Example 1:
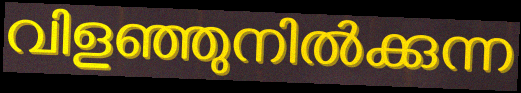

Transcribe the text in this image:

വിളഞ്ഞുനിൽക്കുന്ന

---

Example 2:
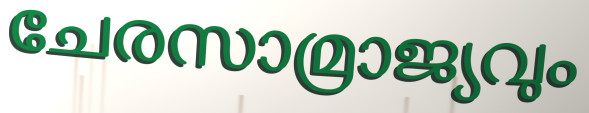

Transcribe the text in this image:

ചേരസാമ്രാജ്യവും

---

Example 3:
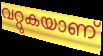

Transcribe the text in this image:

വറ്റുകയാണ്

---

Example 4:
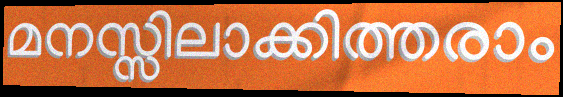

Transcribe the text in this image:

മനസ്സിലാക്കിത്തരാം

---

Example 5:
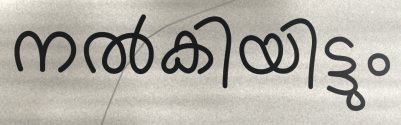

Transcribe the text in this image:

നൽകിയിട്ടും